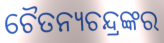
ଚୈତନ୍ୟଚନ୍ଦ୍ରଙ୍କର